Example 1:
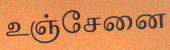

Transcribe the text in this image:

உஞ்சேனை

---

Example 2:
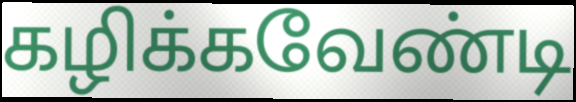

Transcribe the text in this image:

கழிக்கவேண்டி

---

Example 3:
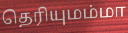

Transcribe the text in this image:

தெரியுமம்மா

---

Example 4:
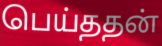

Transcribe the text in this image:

பெய்ததன்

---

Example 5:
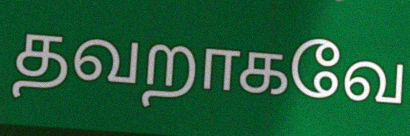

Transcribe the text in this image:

தவறாகவே